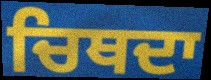
ਚਿਥਦਾ